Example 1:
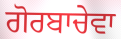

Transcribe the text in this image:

ਗੋਰਬਾਚੇਵਾ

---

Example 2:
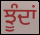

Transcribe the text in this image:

ਝੂੰਦਾਂ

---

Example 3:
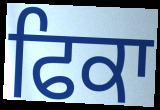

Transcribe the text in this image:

ਫਿਕਾ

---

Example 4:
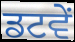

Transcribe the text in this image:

ਡਟਵੇਂ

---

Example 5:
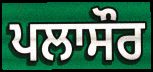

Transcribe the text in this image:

ਪਲਾਸੌਰ